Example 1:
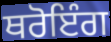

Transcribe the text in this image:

ਥਰੋਇੰਗ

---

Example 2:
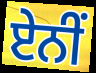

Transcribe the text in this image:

ਏਨੀਂ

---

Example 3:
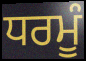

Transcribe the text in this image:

ਧਰਮੂੰ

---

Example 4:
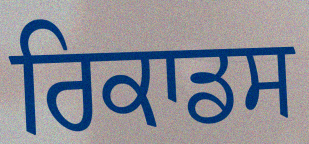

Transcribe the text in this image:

ਰਿਕਾਡਸ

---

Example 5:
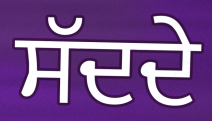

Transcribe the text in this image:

ਸੱਦਦੇ